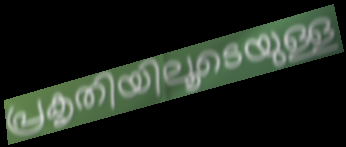
പ്രകൃതിയിലൂടെയുള്ള